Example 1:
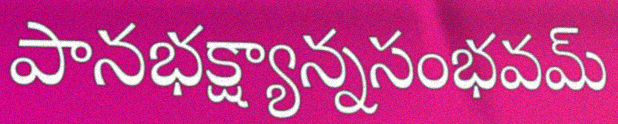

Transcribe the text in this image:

పానభక్ష్యాన్నసంభవమ్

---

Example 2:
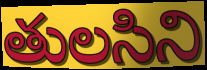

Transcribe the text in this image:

తులసిని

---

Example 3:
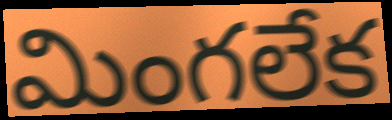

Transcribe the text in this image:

మింగలేక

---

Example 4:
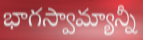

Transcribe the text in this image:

భాగస్వామ్యాన్నీ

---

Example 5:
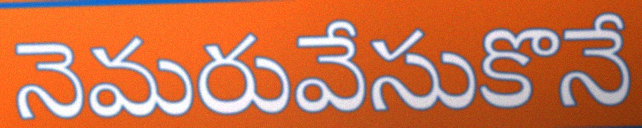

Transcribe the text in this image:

నెమరువేసుకొనే